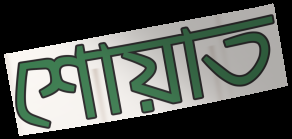
শোয়াত